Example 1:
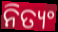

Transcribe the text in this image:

ନିତ୍ୟଂ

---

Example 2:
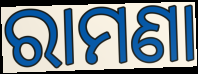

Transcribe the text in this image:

ରାମଣା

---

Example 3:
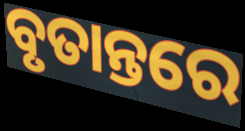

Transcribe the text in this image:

ବୃତାନ୍ତରେ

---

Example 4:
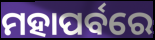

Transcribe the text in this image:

ମହାପର୍ବରେ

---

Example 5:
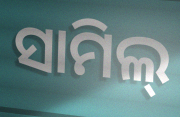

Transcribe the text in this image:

ସାମିଲ୍